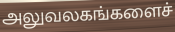
அலுவலகங்களைச்